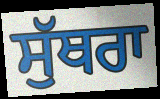
ਸੁੱਥਰਾ